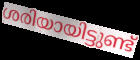
ശരിയായിട്ടുണ്ട്